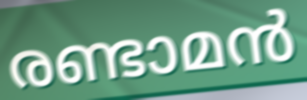
രണ്ടാമൻ